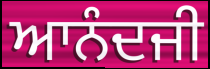
ਆਨੰਦਜੀ